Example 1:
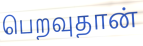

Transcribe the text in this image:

பெறவுதான்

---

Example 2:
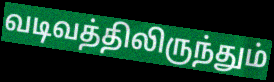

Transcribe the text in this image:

வடிவத்திலிருந்தும்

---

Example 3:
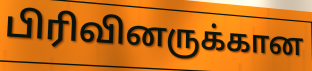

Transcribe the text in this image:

பிரிவினருக்கான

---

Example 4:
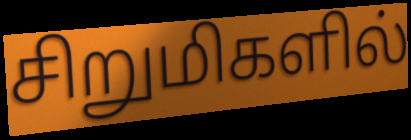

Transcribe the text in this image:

சிறுமிகளில்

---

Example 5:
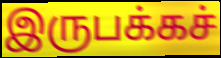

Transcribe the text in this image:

இருபக்கச்